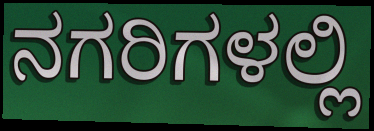
ನಗರಿಗಳಲ್ಲಿ